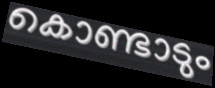
കൊണ്ടാടും